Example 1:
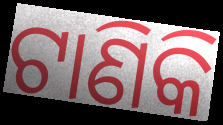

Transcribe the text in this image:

ଟାଣିକି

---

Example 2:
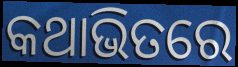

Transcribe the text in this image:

କଥାଭିତରେ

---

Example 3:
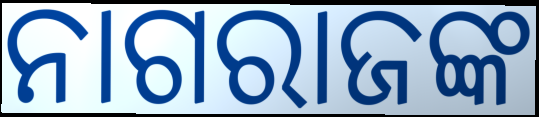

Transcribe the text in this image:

ନାଗରାଜଙ୍କ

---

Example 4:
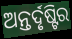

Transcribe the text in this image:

ଅନ୍ତର୍ଦୃଷ୍ଟିର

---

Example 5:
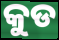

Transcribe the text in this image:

କୁଡ